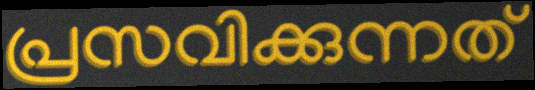
പ്രസവിക്കുന്നത്